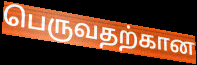
பெருவதற்கான